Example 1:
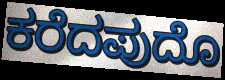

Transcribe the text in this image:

ಕರೆದಪುದೊ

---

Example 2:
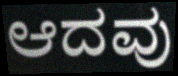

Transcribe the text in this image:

ಆದವು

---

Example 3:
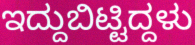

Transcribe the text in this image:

ಇದ್ದುಬಿಟ್ಟಿದ್ದಳು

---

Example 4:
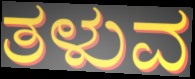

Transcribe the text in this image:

ತಳುವ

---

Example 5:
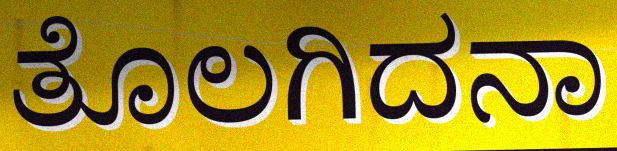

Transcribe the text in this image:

ತೊಲಗಿದನಾ